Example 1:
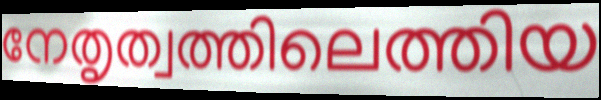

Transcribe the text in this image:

നേതൃത്വത്തിലെത്തിയ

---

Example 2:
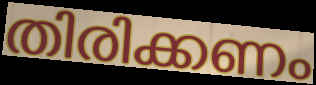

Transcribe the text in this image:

തിരിക്കണം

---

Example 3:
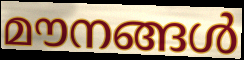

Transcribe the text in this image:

മൗനങ്ങൾ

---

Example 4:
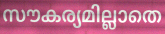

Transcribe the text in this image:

സൗകര്യമില്ലാതെ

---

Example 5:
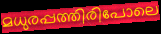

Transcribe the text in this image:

മധുരപ്പത്തിരിപോലെ